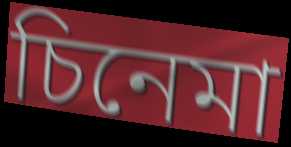
চিনেমা